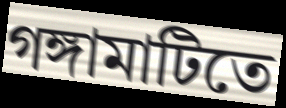
গঙ্গামাটিতে